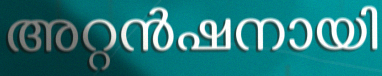
അറ്റൻഷനായി